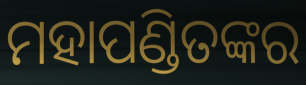
ମହାପଣ୍ଡିତଙ୍କର